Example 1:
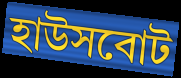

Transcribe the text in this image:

হাউসবোট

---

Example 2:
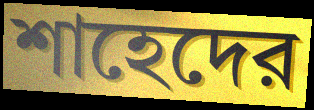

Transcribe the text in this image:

শাহেদের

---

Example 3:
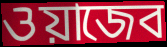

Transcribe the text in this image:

ওয়াজেব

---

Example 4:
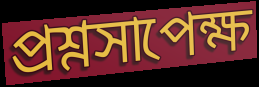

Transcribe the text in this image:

প্রশ্নসাপেক্ষ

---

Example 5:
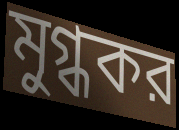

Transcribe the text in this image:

মুগ্ধকর